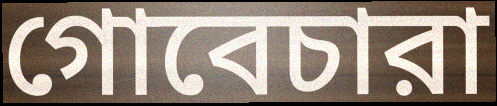
গোবেচারা